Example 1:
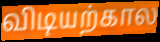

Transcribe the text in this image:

விடியற்கால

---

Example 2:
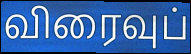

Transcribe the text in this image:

விரைவுப்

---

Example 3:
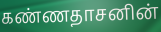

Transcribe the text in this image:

கண்ணதாசனின்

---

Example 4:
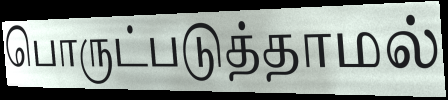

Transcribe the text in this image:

பொருட்படுத்தாமல்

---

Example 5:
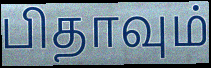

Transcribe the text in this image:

பிதாவும்